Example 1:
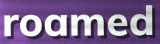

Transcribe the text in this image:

roamed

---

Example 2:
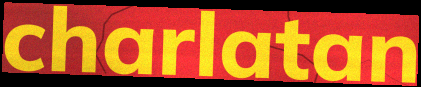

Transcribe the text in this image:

charlatan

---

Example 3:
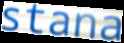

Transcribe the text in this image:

stana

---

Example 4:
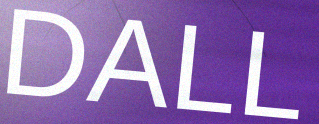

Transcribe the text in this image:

DALL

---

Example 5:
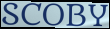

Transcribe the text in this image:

SCOBY